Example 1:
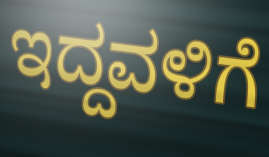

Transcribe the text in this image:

ಇದ್ದವಳಿಗೆ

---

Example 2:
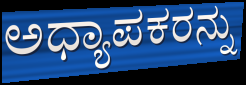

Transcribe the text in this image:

ಅಧ್ಯಾಪಕರನ್ನು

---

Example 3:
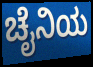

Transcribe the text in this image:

ಚೈನಿಯ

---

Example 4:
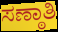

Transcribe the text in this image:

ಸಣ್ಠಾತಿ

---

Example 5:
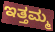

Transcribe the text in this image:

ಇತ್ತಮ್ಮ